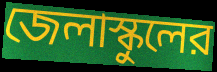
জেলাস্কুলের